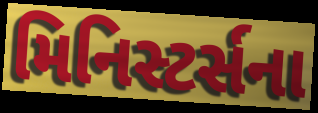
મિનિસ્ટર્સના